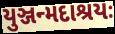
યુઞ્જન્મદાશ્રયઃ